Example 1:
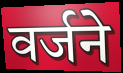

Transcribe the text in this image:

वर्जने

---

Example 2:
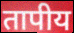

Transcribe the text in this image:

तापीय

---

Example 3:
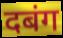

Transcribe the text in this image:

दबंग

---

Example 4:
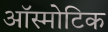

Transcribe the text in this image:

ऑस्मोटिक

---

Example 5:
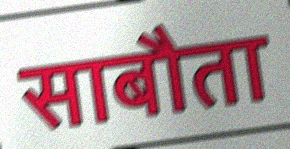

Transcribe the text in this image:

साबौता